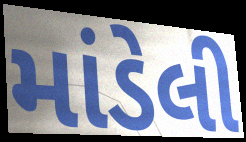
માંડેલી